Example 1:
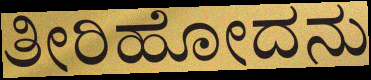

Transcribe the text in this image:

ತೀರಿಹೋದನು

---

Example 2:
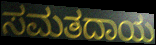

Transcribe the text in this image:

ಸಮತದಾಯ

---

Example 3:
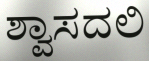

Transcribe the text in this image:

ಶ್ವಾಸದಲಿ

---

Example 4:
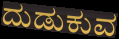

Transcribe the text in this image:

ದುಡುಕುವ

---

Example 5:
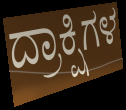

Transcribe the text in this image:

ದ್ರಾಕ್ಷಿಗಳ